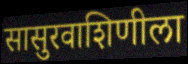
सासुरवाशिणीला